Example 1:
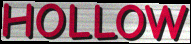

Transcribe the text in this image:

HOLLOW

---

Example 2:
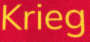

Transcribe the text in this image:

Krieg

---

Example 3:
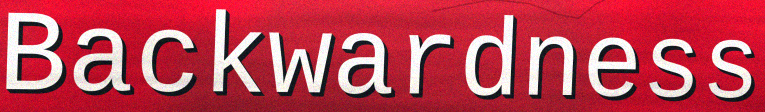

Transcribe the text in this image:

Backwardness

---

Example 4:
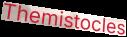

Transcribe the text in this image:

Themistocles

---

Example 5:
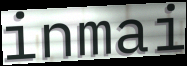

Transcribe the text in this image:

inmai